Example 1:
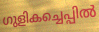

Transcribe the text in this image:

ഗുളികച്ചെപ്പിൽ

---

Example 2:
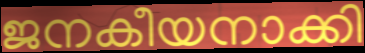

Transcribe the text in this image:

ജനകീയനാക്കി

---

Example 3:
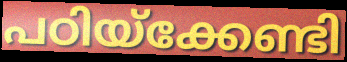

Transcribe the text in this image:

പഠിയ്ക്കേണ്ടി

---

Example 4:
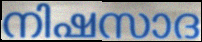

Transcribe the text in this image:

നിഷസാദ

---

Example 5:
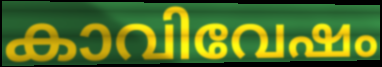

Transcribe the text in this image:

കാവിവേഷം